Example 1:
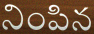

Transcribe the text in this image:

నింపిన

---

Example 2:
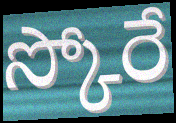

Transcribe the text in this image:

స్కోరే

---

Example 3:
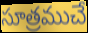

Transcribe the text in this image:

సూత్రముచే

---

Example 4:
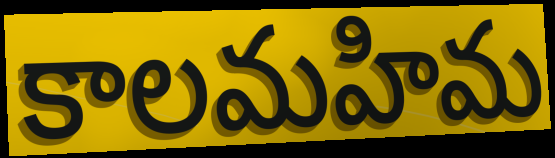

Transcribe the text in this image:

కాలమహిమ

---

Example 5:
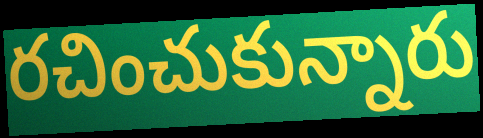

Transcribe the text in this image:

రచించుకున్నారు